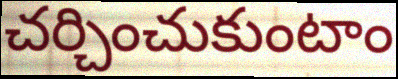
చర్చించుకుంటాం